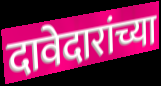
दावेदारांच्या